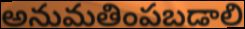
అనుమతింపబడాలి